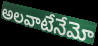
అలవాటేనేమో